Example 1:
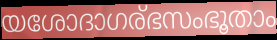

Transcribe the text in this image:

യശോദാഗര്ഭസംഭൂതാം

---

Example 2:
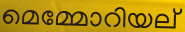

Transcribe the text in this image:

മെമ്മോറിയല്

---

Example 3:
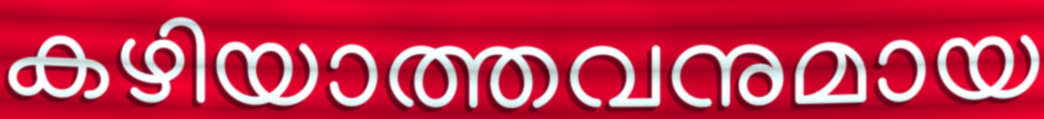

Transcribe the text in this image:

കഴിയാത്തവനുമായ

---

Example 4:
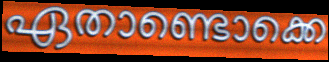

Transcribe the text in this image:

ഏതാണ്ടൊക്കെ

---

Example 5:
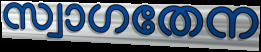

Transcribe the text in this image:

സ്വാഗതേന